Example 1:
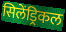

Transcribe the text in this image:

सिलेंड्रिकल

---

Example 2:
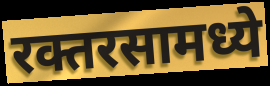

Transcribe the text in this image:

रक्तरसामध्ये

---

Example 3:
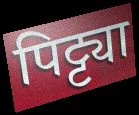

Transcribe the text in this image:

पिट्ट्या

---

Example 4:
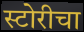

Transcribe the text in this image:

स्टोरीचा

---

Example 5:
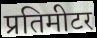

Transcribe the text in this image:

प्रतिमीटर